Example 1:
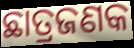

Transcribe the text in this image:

ଛାତ୍ରଜଣକ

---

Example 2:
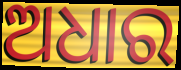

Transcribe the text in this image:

ଅଧାର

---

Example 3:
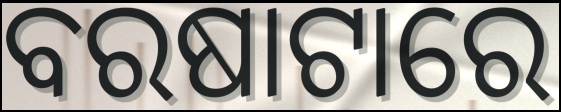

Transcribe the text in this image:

ବରଷାଟାରେ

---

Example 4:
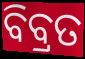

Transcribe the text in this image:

ବିବ୍ରତ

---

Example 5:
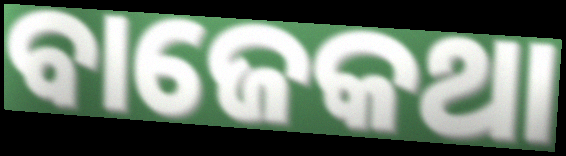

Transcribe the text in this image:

ବାଜେକଥା